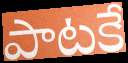
పాటకే